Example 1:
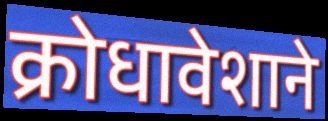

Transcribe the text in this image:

क्रोधावेशाने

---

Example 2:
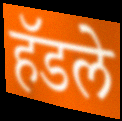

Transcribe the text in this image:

हॅडले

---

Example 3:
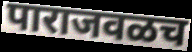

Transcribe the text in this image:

पाराजवळच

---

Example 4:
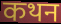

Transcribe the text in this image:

कथन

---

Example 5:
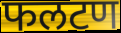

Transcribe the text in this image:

फलटण